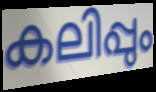
കലിപ്പും